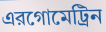
এরগোমেট্রিন